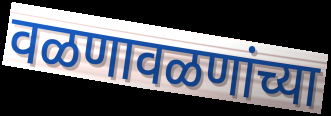
वळणावळणांच्या